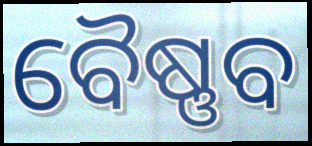
ବୈଷ୍ଣବ